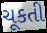
ચૂકતી